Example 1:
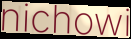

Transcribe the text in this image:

nichowi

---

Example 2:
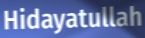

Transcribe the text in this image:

Hidayatullah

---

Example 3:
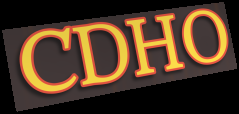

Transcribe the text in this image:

CDHO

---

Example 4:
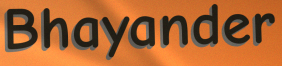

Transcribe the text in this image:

Bhayander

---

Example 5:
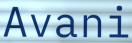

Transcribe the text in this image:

Avani